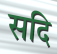
सदि